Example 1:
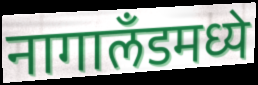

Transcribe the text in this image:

नागालॅंडमध्ये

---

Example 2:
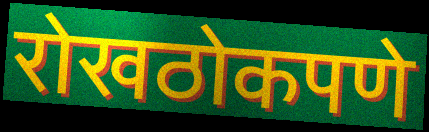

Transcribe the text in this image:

रोखठोकपणे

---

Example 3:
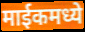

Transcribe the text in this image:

माईकमध्ये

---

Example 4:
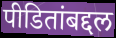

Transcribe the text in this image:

पीडितांबद्दल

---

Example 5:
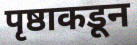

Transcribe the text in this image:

पृष्ठाकडून